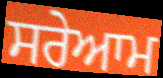
ਸਰੇਆਮ